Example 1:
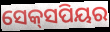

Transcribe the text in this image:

ସେକ୍‌ସପିୟର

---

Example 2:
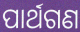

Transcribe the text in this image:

ପାର୍ଥଗଣ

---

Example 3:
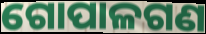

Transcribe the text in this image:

ଗୋପାଳଗଣ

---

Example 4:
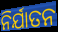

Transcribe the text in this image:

ନିର୍ଯାତନ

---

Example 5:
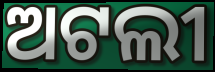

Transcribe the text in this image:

ଅଟଲୀ